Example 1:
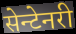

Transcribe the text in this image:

सेन्टेनरी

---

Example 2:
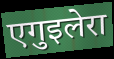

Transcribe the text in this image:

एगुइलेरा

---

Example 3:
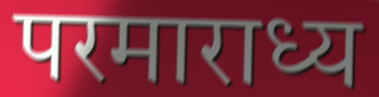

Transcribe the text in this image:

परमाराध्य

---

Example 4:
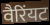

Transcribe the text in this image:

वैरिंयट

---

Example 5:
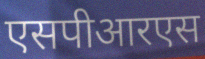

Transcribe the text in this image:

एसपीआरएस